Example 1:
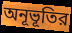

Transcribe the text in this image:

অনূভূতির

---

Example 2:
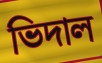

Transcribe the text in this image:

ভিদাল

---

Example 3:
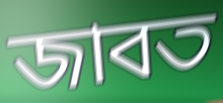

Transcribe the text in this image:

জাবত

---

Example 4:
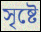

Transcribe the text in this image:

সৃষ্টে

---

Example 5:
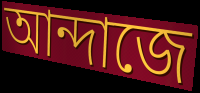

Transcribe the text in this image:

আন্দাজে